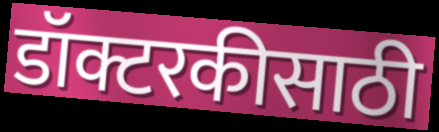
डॉक्टरकीसाठी